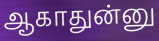
ஆகாதுன்னு